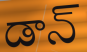
డాన్